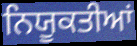
ਨਿਯੂਕਤੀਆਂ